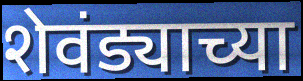
शेवंड्याच्या